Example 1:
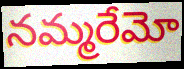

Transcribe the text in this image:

నమ్మరేమో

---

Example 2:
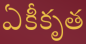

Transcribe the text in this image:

ఏకీకృత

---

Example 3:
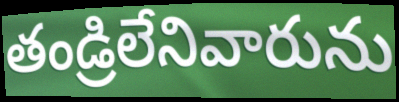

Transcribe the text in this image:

తండ్రిలేనివారును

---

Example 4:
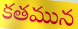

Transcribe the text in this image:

కతమున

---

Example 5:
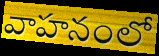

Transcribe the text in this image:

వాహనంలో